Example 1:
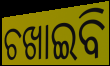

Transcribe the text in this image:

ଚଖାଇବି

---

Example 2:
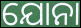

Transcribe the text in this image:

ଯୋନା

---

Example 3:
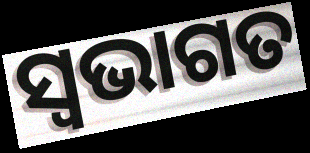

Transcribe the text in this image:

ସ୍ଵଭାଗତ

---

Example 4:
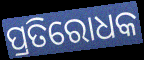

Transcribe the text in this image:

ପ୍ରତିରୋଧକ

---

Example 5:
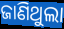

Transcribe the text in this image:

ଜାଣିଥୁଲା